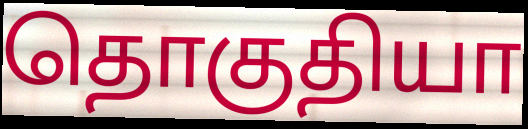
தொகுதியா